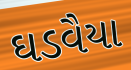
ઘડવૈયા